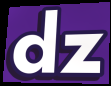
dz